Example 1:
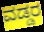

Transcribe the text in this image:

ವಡ್ಡರ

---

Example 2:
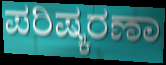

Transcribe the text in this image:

ಪರಿಷ್ಕರಣಾ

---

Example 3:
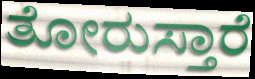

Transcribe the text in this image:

ತೋರುಸ್ತಾರೆ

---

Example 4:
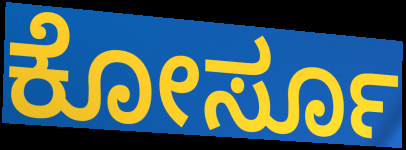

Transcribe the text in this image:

ಕೋರ್ಸೂ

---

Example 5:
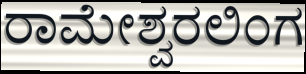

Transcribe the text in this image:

ರಾಮೇಶ್ವರಲಿಂಗ